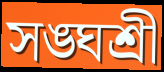
সঙ্ঘশ্রী